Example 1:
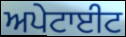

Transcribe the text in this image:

ਅਪੇਟਾਈਟ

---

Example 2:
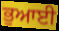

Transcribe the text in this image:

ਭੁਆਈ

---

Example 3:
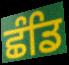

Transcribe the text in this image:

ਛੰਡਿ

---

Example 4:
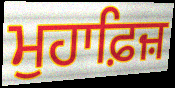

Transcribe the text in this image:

ਮੁਹਾਫ਼ਿਜ਼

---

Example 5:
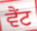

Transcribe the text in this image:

ਵੈਂਟ